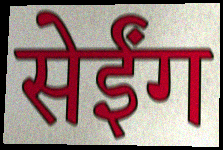
सेईंग